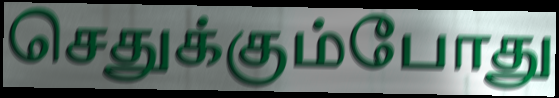
செதுக்கும்போது